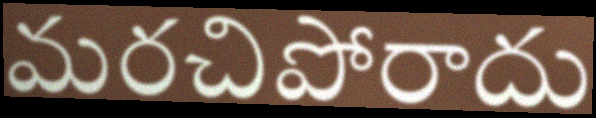
మరచిపోరాదు